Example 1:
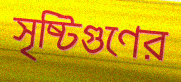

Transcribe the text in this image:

সৃষ্টিগুণের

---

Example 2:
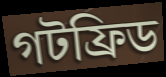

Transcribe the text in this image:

গটফ্রিড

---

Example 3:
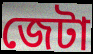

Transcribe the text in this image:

জেটা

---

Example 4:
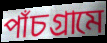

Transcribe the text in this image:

পাঁচগ্রামে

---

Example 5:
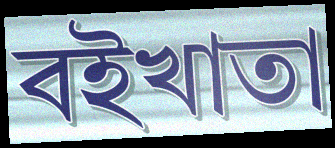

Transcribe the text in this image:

বইখাতা